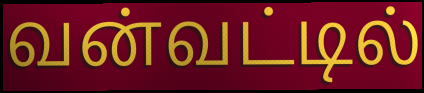
வன்வட்டில்